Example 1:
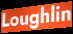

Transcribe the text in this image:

Loughlin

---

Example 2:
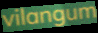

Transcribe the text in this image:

vilangum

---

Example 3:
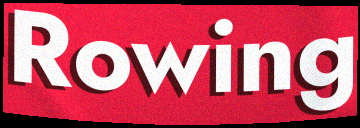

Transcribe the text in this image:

Rowing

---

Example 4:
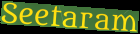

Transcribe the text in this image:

Seetaram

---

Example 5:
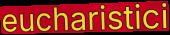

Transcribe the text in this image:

eucharistici